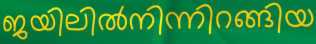
ജയിലിൽനിന്നിറങ്ങിയ